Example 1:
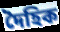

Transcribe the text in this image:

দৈহিক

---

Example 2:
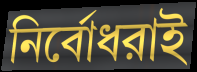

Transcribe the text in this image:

নির্বোধরাই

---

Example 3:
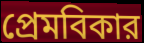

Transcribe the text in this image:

প্রেমবিকার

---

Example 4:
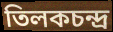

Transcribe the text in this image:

তিলকচন্দ্র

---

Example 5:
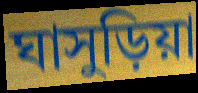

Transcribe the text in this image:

ঘাসুড়িয়া